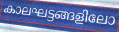
കാലഘട്ടങ്ങളിലോ